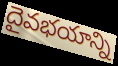
దైవభయాన్ని